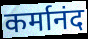
कर्मानंद